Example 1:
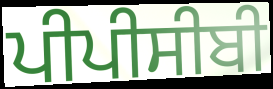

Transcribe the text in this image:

ਪੀਪੀਸੀਬੀ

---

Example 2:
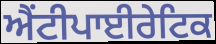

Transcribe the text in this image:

ਐਂਟੀਪਾਈਰੇਟਿਕ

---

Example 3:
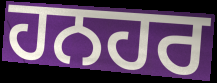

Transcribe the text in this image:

ਹਨਹਰ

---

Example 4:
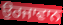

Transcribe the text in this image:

ਉਰਜਾਵਾਨ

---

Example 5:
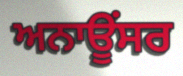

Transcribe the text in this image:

ਅਨਾਊਂਸਰ